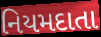
નિયમદાતા